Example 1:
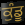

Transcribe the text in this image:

ਕੁੰਡੂ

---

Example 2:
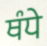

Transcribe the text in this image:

ਥੰਧੇ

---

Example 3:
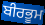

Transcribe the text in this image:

ਬੀਰਭੂਮ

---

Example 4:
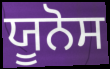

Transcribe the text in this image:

ਯੂਨੋਸ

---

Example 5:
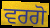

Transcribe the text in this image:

ਵਰਗੋ